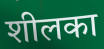
शीलका